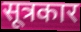
सूत्रकार